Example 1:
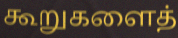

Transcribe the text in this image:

கூறுகளைத்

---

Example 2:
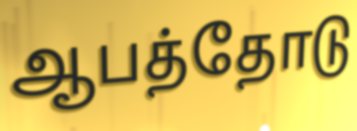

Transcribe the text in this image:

ஆபத்தோடு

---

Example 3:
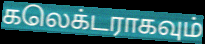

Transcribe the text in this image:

கலெக்டராகவும்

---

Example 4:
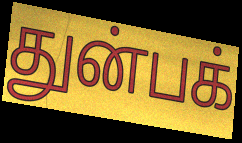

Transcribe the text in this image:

துன்பக்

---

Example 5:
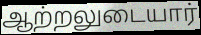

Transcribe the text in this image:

ஆற்றலுடையார்